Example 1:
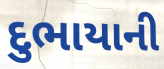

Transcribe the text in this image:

દુભાયાની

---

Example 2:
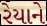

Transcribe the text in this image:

રેયાને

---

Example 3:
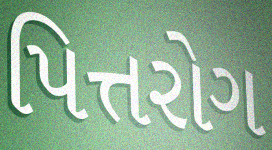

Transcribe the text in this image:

પિત્તરોગ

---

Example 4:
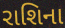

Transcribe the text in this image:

રાશિના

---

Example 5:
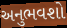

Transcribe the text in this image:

અનુભવશો